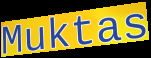
Muktas